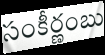
సంకీర్ణంబు